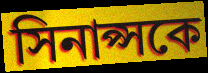
সিনাপ্সকে